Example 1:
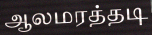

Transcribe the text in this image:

ஆலமரத்தடி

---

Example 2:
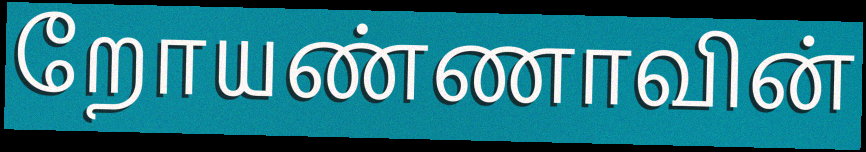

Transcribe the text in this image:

றோயண்ணாவின்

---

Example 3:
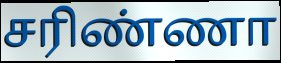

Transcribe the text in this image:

சரிண்ணா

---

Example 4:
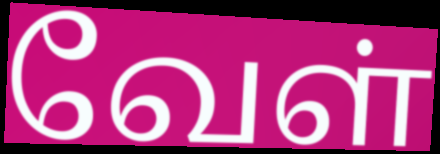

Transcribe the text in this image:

வேள்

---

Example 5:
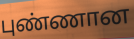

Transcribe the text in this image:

புண்ணான